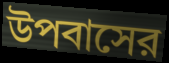
উপবাসের